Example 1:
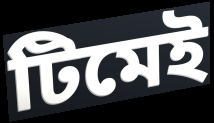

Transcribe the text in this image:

টিমেই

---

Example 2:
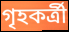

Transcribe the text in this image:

গৃহকর্ত্রী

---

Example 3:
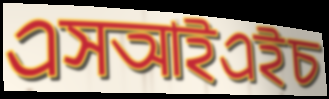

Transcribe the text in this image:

এসআইএইচ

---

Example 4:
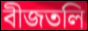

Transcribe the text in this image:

বীজতলি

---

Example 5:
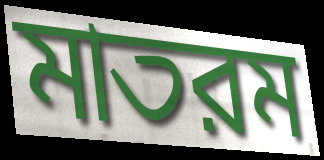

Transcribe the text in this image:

মাতরম